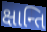
ક્ષાન્તિ